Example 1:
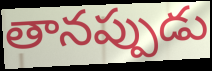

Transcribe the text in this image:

తానప్పుడు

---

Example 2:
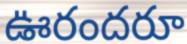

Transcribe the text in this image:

ఊరందరూ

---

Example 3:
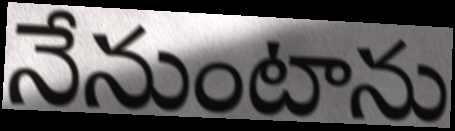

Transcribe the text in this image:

నేనుంటాను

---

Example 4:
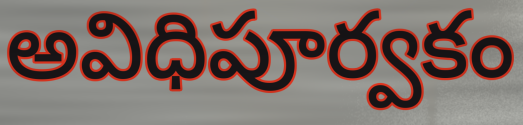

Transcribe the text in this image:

అవిధిపూర్వకం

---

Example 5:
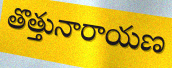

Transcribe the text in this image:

తొత్తునారాయణ